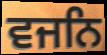
ਵਜਨਿ